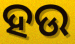
ହଉ